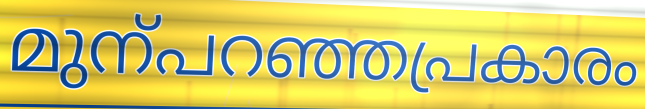
മുന്പറഞ്ഞപ്രകാരം